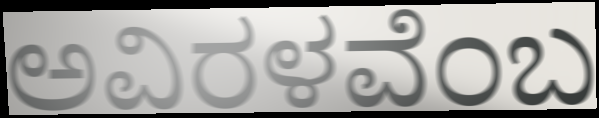
ಅವಿರಳವೆಂಬ